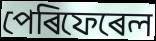
পেৰিফেৰেল